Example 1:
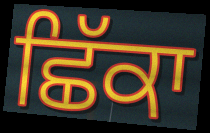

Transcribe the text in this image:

ਛਿੱਕਾ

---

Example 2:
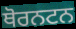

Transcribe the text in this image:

ਥੋਰਨਟਨ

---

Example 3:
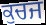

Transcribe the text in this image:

ਕੁਚਜ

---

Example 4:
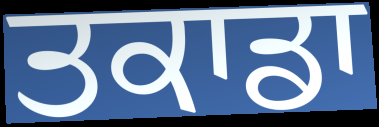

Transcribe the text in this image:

ਤਕਾਡਾ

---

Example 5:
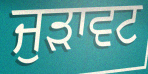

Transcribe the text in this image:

ਜੁੜਾਵਟ